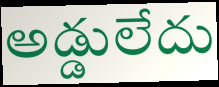
అడ్డులేదు